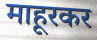
माहूरकर